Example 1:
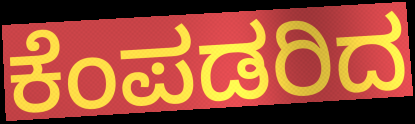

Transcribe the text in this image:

ಕೆಂಪಡರಿದ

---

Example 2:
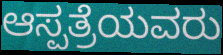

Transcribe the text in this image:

ಆಸ್ಪತ್ರೆಯವರು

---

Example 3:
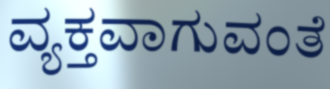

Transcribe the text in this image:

ವ್ಯಕ್ತವಾಗುವಂತೆ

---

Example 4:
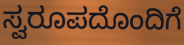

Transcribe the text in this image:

ಸ್ವರೂಪದೊಂದಿಗೆ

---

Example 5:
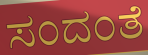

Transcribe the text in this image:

ಸಂದಂತೆ